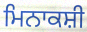
ਮਿਨਾਕਸ਼ੀ